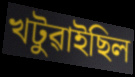
খটুৱাইছিল